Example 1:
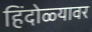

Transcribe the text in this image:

हिंदोळ्यावर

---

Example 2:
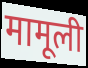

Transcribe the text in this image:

मामूली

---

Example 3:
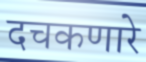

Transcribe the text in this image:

दचकणारे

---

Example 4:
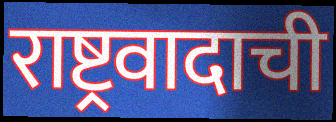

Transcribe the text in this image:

राष्ट्रवादाची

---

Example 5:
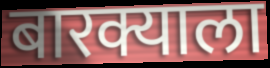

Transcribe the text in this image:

बारक्याला